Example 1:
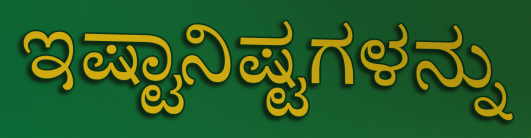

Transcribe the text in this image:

ಇಷ್ಟಾನಿಷ್ಟಗಳನ್ನು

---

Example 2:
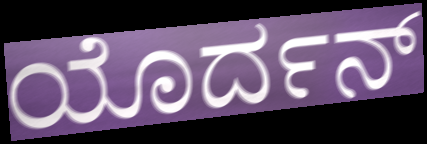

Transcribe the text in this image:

ಯೊರ್ದನ್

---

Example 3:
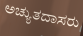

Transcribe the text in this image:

ಅಚ್ಯುತದಾಸರು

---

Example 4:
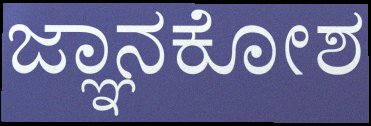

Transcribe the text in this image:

ಜ್ಞಾನಕೋಶ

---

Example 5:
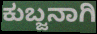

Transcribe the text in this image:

ಕುಬ್ಜನಾಗಿ